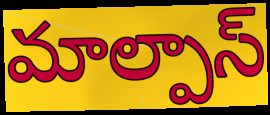
మాల్పాస్